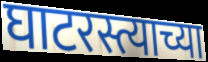
घाटरस्त्याच्या